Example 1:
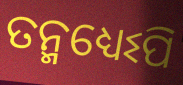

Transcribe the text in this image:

ତନ୍ମଧ୍ୟେଽପି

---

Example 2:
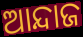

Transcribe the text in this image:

ଆନ୍ଦାଜ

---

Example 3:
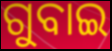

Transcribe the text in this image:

ଗୁବାଇ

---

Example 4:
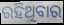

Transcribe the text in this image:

ରହିଥିବାର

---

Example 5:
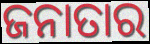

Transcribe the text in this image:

ଜନାତାର